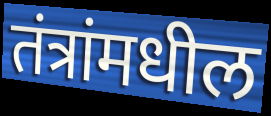
तंत्रांमधील